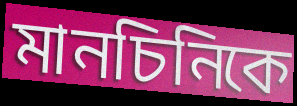
মানচিনিকে